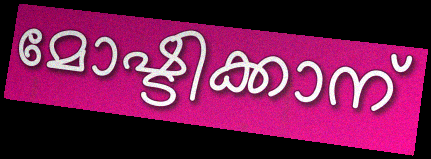
മോഷ്ടിക്കാന്